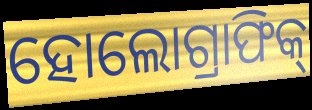
ହୋଲୋଗ୍ରାଫିକ୍